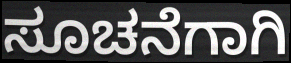
ಸೂಚನೆಗಾಗಿ